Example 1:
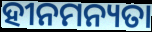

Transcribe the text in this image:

ହୀନମନ୍ୟତା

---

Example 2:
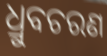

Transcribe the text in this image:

ଧ୍ରୁବଚରଣ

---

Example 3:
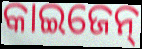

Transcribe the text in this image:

କାଇଜେନ୍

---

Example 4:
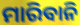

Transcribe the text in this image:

ମାରିବାନି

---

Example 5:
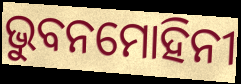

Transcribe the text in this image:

ଭୁବନମୋହିନୀ